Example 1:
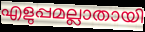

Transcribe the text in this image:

എളുപ്പമല്ലാതായി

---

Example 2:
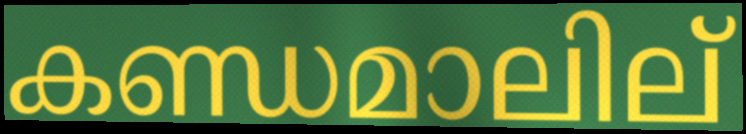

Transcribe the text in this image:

കണ്ഡമാലില്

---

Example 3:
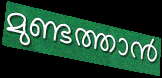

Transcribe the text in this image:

മുണ്ടത്താൻ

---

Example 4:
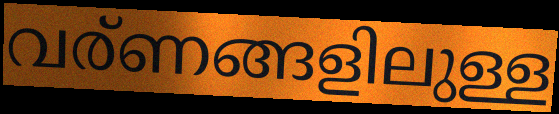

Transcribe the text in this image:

വര്ണങ്ങളിലുള്ള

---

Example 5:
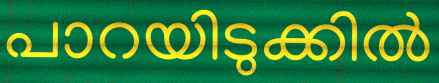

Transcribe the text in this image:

പാറയിടുക്കിൽ